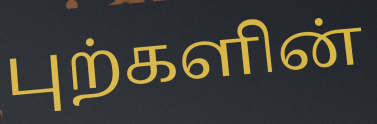
புற்களின்